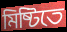
মিষ্টিতে